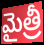
మైత్రీ